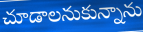
చూడాలనుకున్నాను